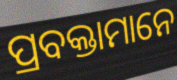
ପ୍ରବକ୍ତାମାନେ